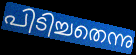
പിടിച്ചതെന്നു